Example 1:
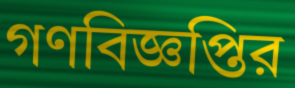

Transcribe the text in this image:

গণবিজ্ঞপ্তির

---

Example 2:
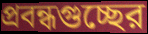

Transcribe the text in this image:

প্রবন্ধগুচ্ছের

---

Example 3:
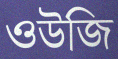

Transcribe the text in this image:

ওউজি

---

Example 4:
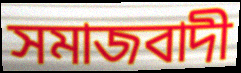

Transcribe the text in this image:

সমাজবাদী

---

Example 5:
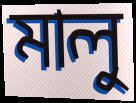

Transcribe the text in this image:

মালু